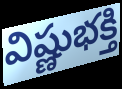
విష్ణుభక్తి